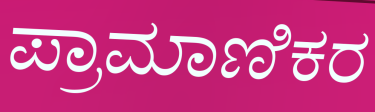
ಪ್ರಾಮಾಣಿಕರ